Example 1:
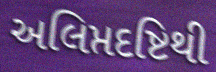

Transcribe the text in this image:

અલિપ્તદષ્ટિથી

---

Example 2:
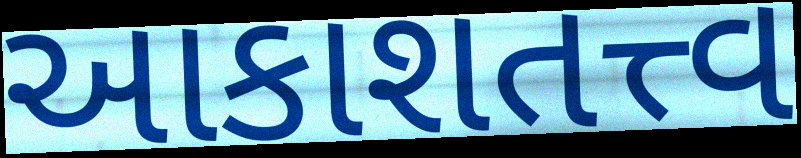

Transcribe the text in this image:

આકાશતત્ત્વ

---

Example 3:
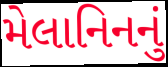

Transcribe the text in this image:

મેલાનિનનું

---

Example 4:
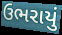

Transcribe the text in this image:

ઉભરાયું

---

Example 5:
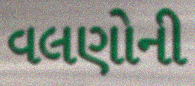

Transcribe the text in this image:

વલણોની